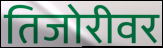
तिजोरीवर